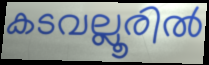
കടവല്ലൂരിൽ